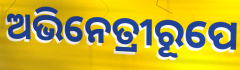
ଅଭିନେତ୍ରୀରୂପେ